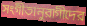
সংগীতানুরাগীদের